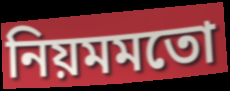
নিয়মমতো